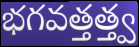
భగవత్తత్త్వ